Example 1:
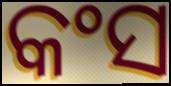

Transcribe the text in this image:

କଂସ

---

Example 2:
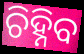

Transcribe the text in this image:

ଚିହ୍ନିବ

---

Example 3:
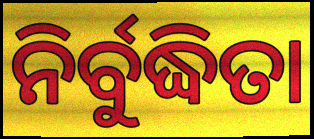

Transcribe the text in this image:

ନିର୍ବୁଦ୍ଧିତା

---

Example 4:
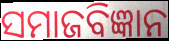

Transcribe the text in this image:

ସମାଜବିଜ୍ଞାନ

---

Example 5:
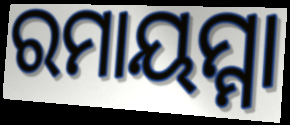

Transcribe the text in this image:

ରମାୟମ୍ମା